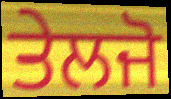
ਤੇਲਜੋ